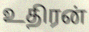
உதிரன்